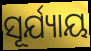
ସୂର୍ଯ୍ୟାୟ